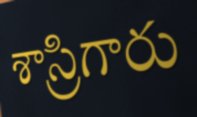
శాస్రిగారు